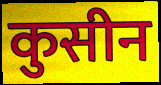
कुसीन